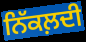
ਨਿੱਕਲ਼ਦੀ